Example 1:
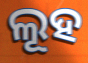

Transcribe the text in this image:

ଲୂହ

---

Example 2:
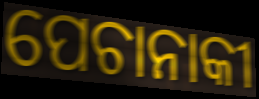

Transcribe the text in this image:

ପେଚାନାକୀ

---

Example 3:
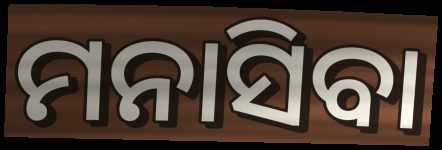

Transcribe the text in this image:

ମନାସିବା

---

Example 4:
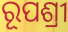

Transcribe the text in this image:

ରୂପଶ୍ରୀ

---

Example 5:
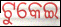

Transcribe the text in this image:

ଟୁକେଇ